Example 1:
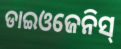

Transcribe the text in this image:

ଡାଇଓଜେନିସ୍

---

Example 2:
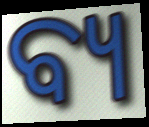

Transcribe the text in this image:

ବ୍ୟ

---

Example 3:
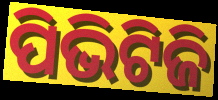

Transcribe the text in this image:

ପିଭିଟିଜି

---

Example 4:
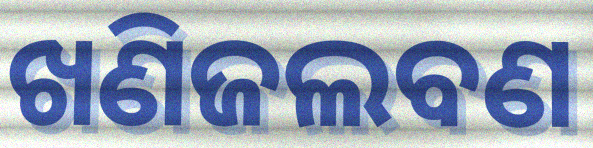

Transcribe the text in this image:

ଖଣିଜଲବଣ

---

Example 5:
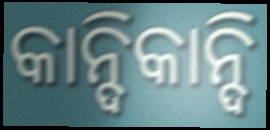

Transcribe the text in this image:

କାନ୍ଦିକାନ୍ଦି